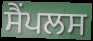
ਸੈਂਪਲਸ